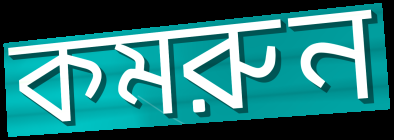
কমরুন